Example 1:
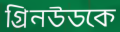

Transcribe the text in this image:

গ্রিনউডকে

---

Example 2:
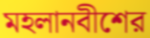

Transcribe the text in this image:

মহলানবীশের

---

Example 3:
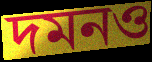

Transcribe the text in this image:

দমনও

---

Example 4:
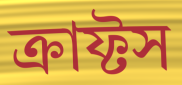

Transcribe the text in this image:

ক্রাফ্টস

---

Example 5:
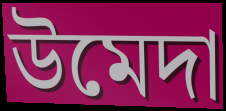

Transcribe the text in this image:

উমেদা